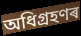
অধিগ্ৰহণৰ